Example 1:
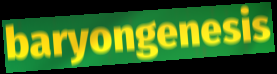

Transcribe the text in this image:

baryongenesis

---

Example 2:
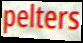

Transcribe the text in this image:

pelters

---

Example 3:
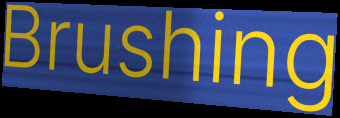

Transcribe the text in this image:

Brushing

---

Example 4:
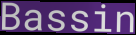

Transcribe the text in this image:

Bassin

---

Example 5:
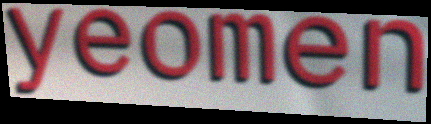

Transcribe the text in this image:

yeomen